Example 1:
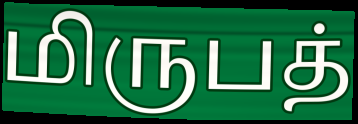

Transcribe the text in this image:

மிருபத்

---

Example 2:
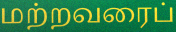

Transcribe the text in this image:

மற்றவரைப்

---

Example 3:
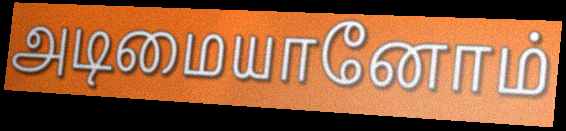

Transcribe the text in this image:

அடிமையானோம்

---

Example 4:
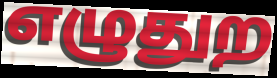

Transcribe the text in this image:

எழுதுற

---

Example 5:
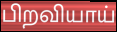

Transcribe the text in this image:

பிறவியாய்